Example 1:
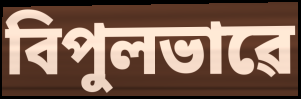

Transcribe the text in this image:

বিপুলভাৱে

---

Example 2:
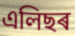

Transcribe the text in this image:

এলিছৰ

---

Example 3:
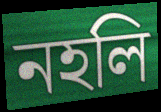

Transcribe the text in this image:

নহলি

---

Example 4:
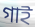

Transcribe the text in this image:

গাই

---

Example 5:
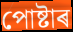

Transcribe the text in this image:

পোষ্টাৰ